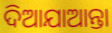
ଦିଆଯାଆନ୍ତା